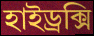
হাইড্রক্সি